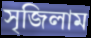
সৃজিলাম